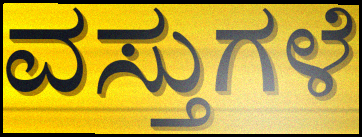
ವಸ್ತುಗಳೆ